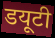
डयूटी